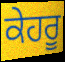
ਕੇਹਰੂ